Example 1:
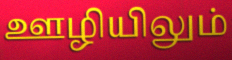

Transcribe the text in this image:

ஊழியிலும்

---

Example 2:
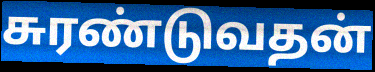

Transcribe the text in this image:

சுரண்டுவதன்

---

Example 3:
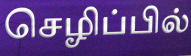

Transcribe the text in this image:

செழிப்பில்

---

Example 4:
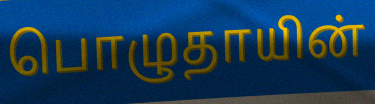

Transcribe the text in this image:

பொழுதாயின்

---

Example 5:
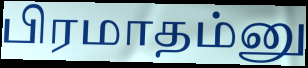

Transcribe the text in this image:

பிரமாதம்னு